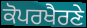
ਕੋਪਰਖੈਰਣੇ